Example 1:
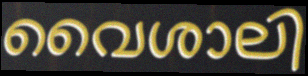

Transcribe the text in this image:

വൈശാലി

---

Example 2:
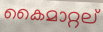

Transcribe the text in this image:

കൈമാറ്റല്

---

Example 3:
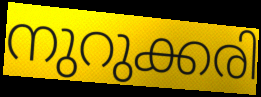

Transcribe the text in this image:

നുറുക്കരി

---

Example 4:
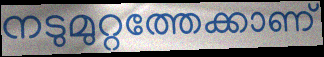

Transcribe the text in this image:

നടുമുറ്റത്തേക്കാണ്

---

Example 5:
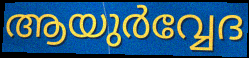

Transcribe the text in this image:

ആയുർവ്വേദ